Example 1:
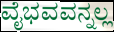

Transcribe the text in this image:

ವೈಭವವನ್ನಲ್ಲ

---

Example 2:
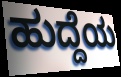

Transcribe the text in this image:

ಹುದ್ದೆಯ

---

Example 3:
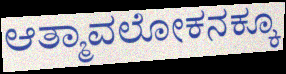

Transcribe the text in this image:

ಆತ್ಮಾವಲೋಕನಕ್ಕೂ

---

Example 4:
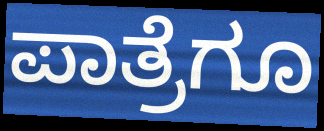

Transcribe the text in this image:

ಪಾತ್ರೆಗೂ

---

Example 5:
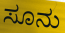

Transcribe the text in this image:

ಸೂನು